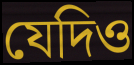
যেদিও